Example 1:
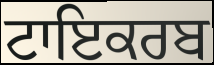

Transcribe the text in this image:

ਟਾਇਕਰਬ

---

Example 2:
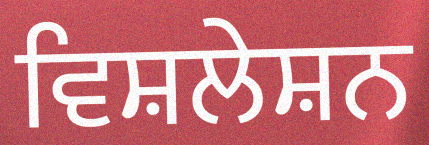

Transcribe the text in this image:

ਵਿਸ਼ਲੇਸ਼ਨ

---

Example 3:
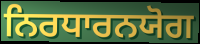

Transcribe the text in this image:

ਨਿਰਧਾਰਨਯੋਗ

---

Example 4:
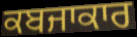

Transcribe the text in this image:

ਕਬਜਾਕਾਰ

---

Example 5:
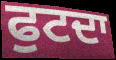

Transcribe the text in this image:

ਫੁਟਦਾ